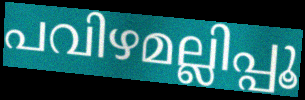
പവിഴമല്ലിപ്പൂ